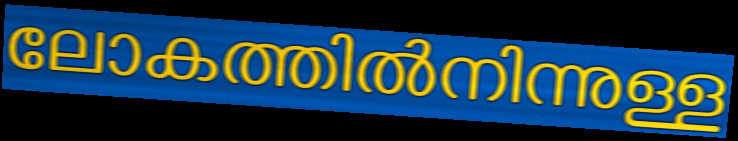
ലോകത്തിൽനിന്നുള്ള